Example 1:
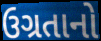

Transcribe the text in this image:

ઉગ્રતાનો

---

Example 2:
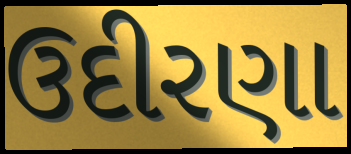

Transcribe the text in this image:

ઉદીરણા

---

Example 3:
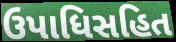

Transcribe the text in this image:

ઉપાધિસહિત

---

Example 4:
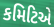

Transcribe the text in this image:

કમિટિએ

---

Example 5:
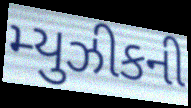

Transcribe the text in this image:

મ્યુઝીકની